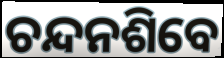
ଚନ୍ଦନଶିବେ